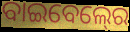
ବାଇବେଲ୍‍ରେ